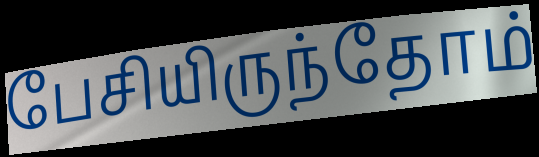
பேசியிருந்தோம்